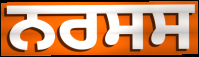
ਨਰਸਸ